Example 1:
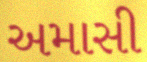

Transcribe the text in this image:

અમાસી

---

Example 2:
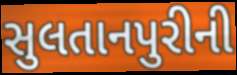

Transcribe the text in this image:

સુલતાનપુરીની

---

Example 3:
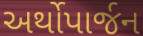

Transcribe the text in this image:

અર્થોપાર્જન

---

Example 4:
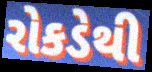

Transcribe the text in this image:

રોકડેથી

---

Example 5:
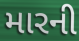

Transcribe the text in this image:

મારની